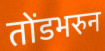
तोंडभरुन